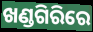
ଖଣ୍ଡଗିରିରେ